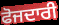
ਫੋਜਦਾਰੀ